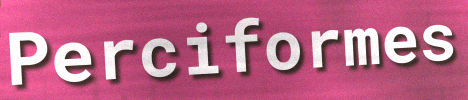
Perciformes